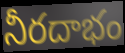
నీరదాభం